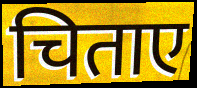
चिताए